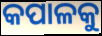
କପାଳକୁ